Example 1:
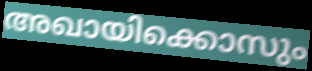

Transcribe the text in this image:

അഖായിക്കൊസും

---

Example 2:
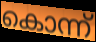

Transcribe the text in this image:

കൊന്ന്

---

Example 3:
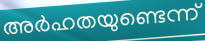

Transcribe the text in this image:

അർഹതയുണ്ടെന്ന്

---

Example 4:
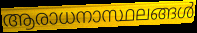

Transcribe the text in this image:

ആരാധനാസ്ഥലങ്ങൾ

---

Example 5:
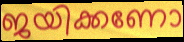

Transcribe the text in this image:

ജയിക്കണോ